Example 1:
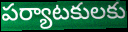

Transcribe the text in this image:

పర్యాటకులకు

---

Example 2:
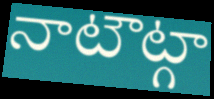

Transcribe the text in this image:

నాటౌట్గా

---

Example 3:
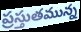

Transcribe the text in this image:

ప్రస్తుతమున్న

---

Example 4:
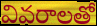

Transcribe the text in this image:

వివరాలతో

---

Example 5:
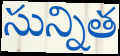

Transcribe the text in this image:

సున్నిత